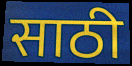
साठी